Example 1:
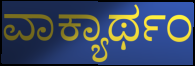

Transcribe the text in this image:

ವಾಕ್ಯಾರ್ಥಂ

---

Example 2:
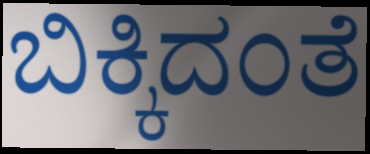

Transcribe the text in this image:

ಬಿಕ್ಕಿದಂತೆ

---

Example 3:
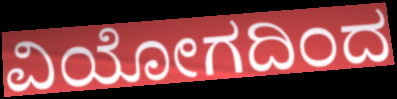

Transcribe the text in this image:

ವಿಯೋಗದಿಂದ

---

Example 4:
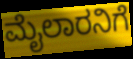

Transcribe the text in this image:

ಮೈಲಾರನಿಗೆ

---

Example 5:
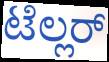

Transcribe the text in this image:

ಟೆಲ್ಲರ್